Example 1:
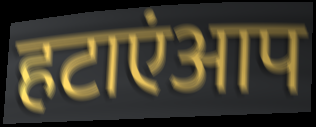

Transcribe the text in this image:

हटाएंआप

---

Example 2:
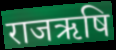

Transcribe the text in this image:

राजऋषि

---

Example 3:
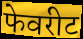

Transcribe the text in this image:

फेवरीट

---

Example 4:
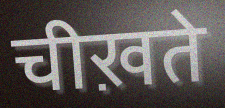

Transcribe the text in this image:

चीख़ते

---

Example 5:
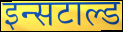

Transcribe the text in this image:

इन्सटाल्ड